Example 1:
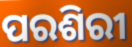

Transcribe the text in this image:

ପରଶିରୀ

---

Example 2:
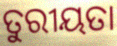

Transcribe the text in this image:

ତୁରୀୟତା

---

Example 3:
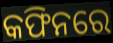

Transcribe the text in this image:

କଫିନରେ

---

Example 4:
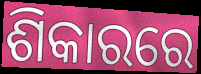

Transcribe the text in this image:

ଶିକାରରେ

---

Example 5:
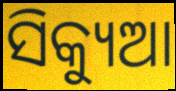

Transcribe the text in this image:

ସିକ୍ୟୁଆ